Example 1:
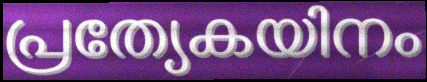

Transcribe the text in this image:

പ്രത്യേകയിനം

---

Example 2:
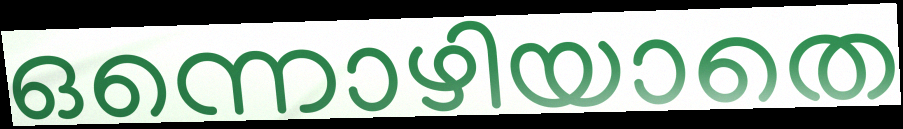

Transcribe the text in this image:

ഒന്നൊഴിയാതെ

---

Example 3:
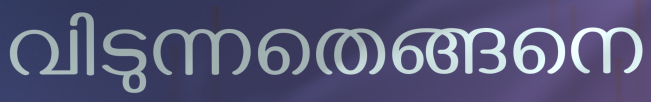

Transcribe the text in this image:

വിടുന്നതെങ്ങനെ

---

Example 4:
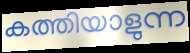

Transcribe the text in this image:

കത്തിയാളുന്ന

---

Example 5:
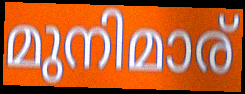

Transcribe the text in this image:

മുനിമാര്